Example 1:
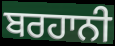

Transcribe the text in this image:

ਬਰਹਾਨੀ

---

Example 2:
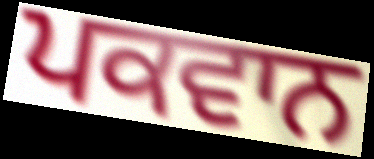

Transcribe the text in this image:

ਪਕਵਾਨ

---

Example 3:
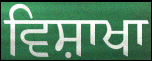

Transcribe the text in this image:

ਵਿਸ਼ਾਖਾ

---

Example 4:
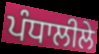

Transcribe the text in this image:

ਪੰਧਾਲੀਲੇ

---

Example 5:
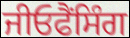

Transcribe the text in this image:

ਜੀਓਫੈਂਸਿੰਗ